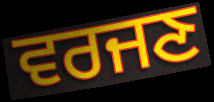
ਵਰਜਣ